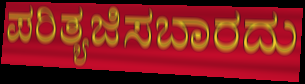
ಪರಿತ್ಯಜಿಸಬಾರದು